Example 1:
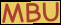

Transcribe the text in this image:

MBU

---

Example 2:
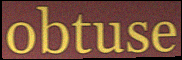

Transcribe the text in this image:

obtuse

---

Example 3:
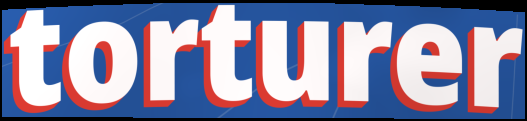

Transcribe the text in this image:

torturer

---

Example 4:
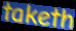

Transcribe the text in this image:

taketh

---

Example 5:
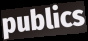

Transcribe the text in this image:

publics